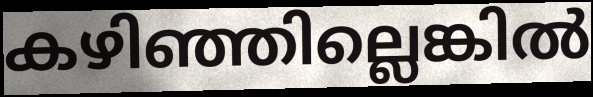
കഴിഞ്ഞില്ലെങ്കിൽ